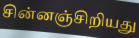
சின்னஞ்சிறியது